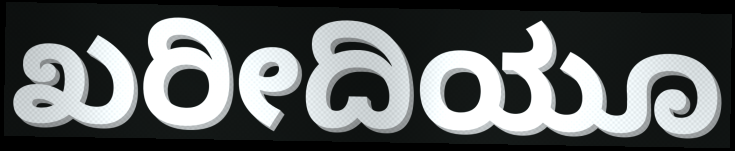
ಖರೀದಿಯೂ